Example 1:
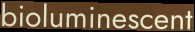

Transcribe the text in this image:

bioluminescent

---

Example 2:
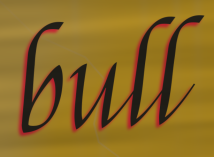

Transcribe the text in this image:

bull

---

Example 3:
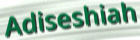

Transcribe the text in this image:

Adiseshiah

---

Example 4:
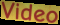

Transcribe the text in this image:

Video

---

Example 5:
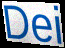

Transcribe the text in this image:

Dei